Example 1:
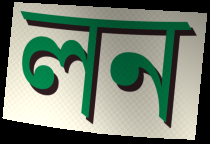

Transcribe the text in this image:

লন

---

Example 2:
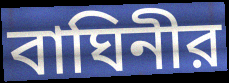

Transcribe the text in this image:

বাঘিনীর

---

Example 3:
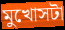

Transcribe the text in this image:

মুখোসটা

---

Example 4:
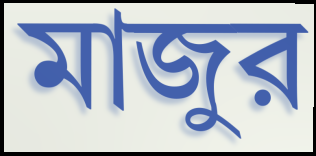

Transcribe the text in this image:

মাজুর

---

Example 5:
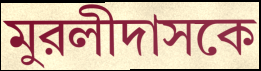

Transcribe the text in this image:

মুরলীদাসকে